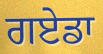
ਗਏਡਾ